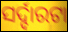
ସର୍ଦ୍ଦାରଟା